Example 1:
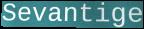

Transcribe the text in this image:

Sevantige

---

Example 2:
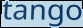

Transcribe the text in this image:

tango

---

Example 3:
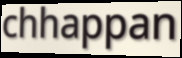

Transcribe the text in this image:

chhappan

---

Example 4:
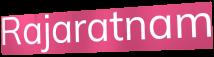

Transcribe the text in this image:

Rajaratnam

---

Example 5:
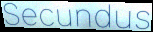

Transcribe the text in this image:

Secundus